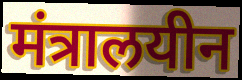
मंत्रालयीन